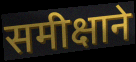
समीक्षाने